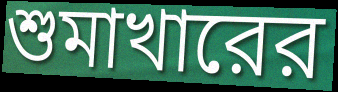
শুমাখারের